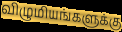
விழுமியங்களுக்கு